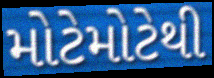
મોટેમોટેથી